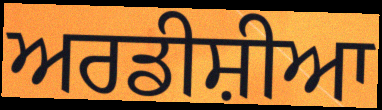
ਅਰਡੀਸ਼ੀਆ